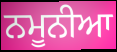
ਨਮੂਨੀਆ